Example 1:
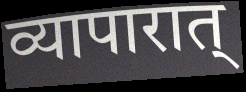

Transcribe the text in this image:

व्यापारात्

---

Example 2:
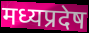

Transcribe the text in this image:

मध्यप्रदेष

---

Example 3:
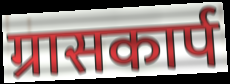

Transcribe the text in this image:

ग्रासकार्प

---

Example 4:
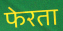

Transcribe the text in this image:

फेरता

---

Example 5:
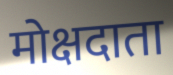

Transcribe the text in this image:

मोक्षदाता